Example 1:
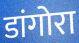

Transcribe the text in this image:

डांगोरा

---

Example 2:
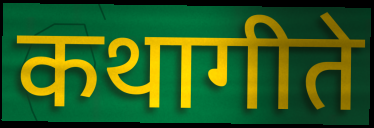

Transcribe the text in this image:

कथागीते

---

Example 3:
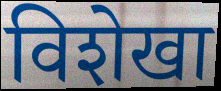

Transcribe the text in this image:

विशेखा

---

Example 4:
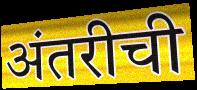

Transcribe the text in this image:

अंतरीची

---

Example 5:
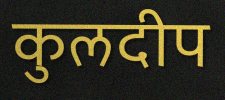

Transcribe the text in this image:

कुलदीप